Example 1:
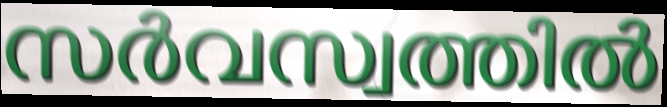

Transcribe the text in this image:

സർവസ്വത്തിൽ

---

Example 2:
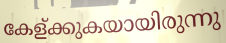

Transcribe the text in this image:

കേള്ക്കുകയായിരുന്നു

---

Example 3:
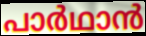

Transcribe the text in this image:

പാർഥാൻ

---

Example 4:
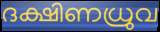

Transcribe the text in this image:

ദക്ഷിണധ്രുവ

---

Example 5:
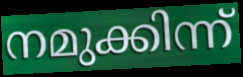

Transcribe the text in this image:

നമുക്കിന്ന്